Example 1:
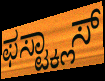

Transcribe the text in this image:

ಫಸ್ಟ್ಕ್ಲಾಸ್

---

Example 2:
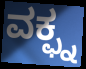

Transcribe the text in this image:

ವಕ್ಫ್ನ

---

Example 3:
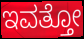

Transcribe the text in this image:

ಇವತ್ತೋ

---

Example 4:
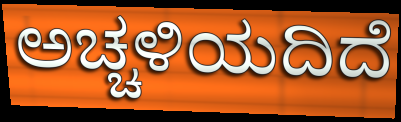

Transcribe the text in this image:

ಅಚ್ಚಳಿಯದಿದೆ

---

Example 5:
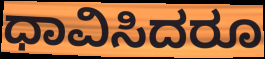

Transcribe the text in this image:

ಧಾವಿಸಿದರೂ